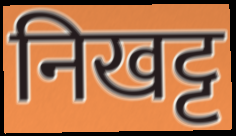
निखट्ट